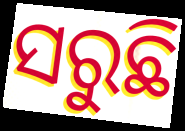
ସରୁଛି